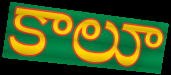
కాలూ